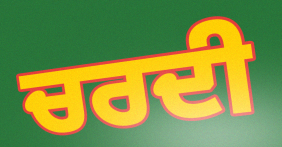
ਚਰਦੀ